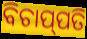
ବିଚାପ୍‌ପତି